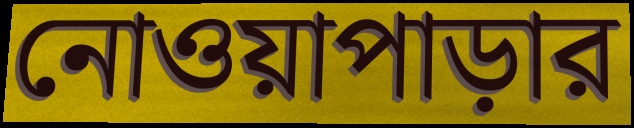
নোওয়াপাড়ার